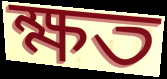
ক্ষত